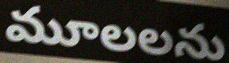
మూలలను